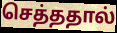
செத்ததால்